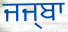
ਜਜ੍ਬਾ